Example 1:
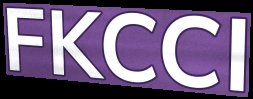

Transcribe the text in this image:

FKCCI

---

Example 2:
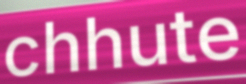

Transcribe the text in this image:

chhute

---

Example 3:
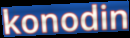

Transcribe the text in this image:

konodin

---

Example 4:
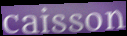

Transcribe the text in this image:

caisson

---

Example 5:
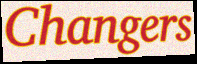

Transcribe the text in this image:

Changers